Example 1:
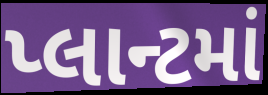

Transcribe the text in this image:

પ્લાન્ટમાં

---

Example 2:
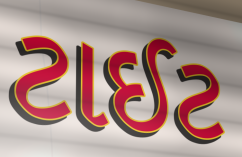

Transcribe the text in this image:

ટાઈટ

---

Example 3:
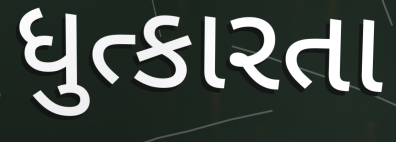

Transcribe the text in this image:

ધુત્કારતા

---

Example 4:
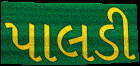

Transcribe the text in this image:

પાલડી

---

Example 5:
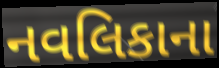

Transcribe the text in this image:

નવલિકાના